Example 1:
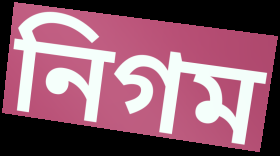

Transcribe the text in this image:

নিগম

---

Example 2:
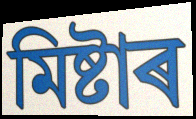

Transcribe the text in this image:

মিষ্টাৰ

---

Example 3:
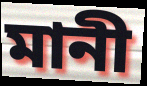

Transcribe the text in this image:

মানী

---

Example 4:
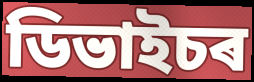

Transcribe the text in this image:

ডিভাইচৰ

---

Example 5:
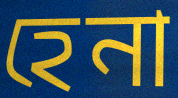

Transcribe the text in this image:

হেনা